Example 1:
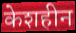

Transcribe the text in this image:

केशहीन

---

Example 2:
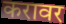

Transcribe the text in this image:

करावर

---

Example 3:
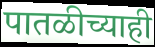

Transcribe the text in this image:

पातळीच्याही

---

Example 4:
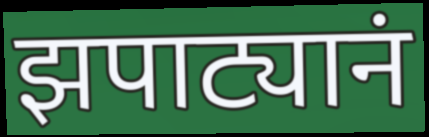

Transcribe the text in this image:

झपाट्यानं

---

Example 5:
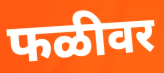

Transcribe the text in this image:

फळीवर